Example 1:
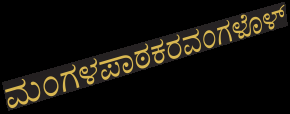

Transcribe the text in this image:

ಮಂಗಳಪಾಠಕರವಂಗಳೊಳ್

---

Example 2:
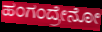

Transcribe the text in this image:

ಹಂಗಂದ್ರೇನೋ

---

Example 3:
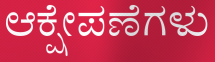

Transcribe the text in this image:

ಆಕ್ಷೇಪಣೆಗಳು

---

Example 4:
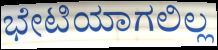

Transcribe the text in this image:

ಭೇಟಿಯಾಗಲಿಲ್ಲ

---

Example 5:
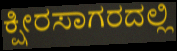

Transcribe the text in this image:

ಕ್ಷೀರಸಾಗರದಲ್ಲಿ